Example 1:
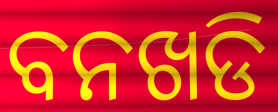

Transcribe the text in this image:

ବନଖଡି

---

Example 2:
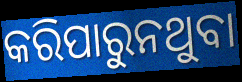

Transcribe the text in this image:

କରିପାରୁନଥୁବା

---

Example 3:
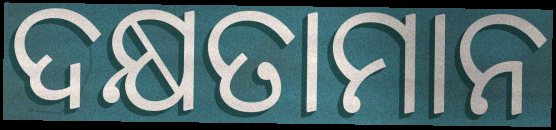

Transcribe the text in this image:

ଦକ୍ଷତାମାନ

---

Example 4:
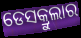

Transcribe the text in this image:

ଡେସକ୍ରୁଲାର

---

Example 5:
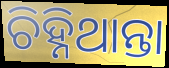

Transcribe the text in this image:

ଚିହ୍ନିଥାନ୍ତା